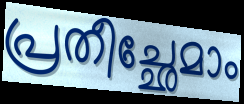
പ്രതീച്ഛേമാം